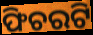
ଫିଚରଟି